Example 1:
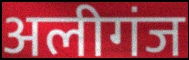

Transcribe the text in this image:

अलीगंज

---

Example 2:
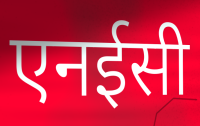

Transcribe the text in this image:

एनईसी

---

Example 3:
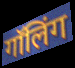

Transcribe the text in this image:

गॉलिंग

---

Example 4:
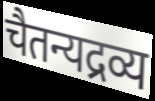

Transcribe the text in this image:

चैतन्यद्रव्य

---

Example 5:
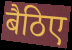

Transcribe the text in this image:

बैठिए